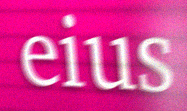
eius